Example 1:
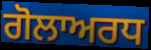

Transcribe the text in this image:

ਗੋਲਾਅਰਧ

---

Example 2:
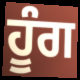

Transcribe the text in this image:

ਹੂੰਗ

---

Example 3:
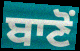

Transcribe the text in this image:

ਬਾਣੋਂ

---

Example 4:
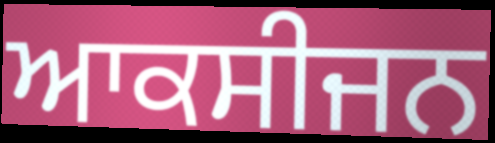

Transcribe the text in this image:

ਆਕਸੀਜਨ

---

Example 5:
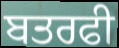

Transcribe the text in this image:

ਬਤਰਫੀ